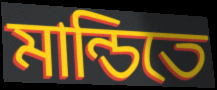
মান্ডিতে